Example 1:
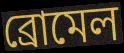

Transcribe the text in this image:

ব্রোমেল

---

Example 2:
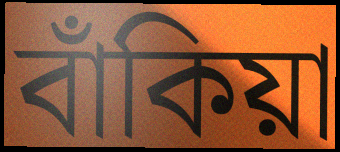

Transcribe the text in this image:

বাঁকিয়া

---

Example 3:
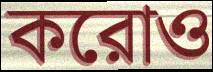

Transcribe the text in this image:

করোও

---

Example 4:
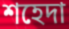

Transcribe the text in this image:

শহেদা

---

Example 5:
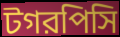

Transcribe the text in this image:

টগরপিসি